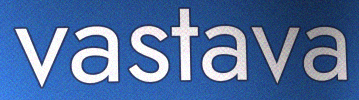
vastava